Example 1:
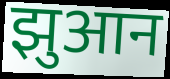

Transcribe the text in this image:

झुआन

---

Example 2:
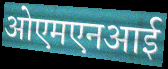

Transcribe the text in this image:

ओएमएनआई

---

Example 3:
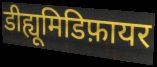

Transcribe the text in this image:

डीह्यूमिडिफ़ायर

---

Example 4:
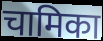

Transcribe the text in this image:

चामिका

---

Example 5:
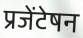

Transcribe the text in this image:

प्रजेंटेषन